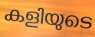
കളിയുടെ